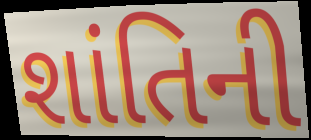
શાંતિની